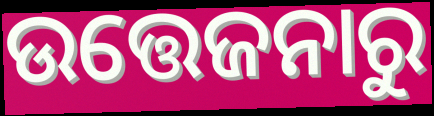
ଉତ୍ତେଜନାରୁ